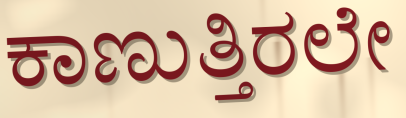
ಕಾಣುತ್ತಿರಲೇ